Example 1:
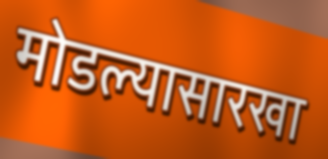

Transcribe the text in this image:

मोडल्यासारखा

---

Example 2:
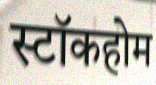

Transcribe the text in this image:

स्टॉकहोम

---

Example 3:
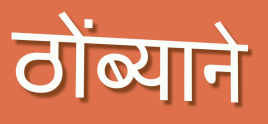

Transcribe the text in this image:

ठोंब्याने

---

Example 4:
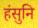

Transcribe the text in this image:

हंसुनि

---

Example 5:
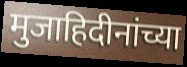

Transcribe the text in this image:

मुजाहिदीनांच्या